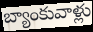
బ్యాంకువాళ్లు